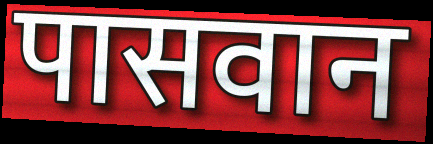
पासवान